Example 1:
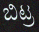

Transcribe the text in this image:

ಬಿಟ್ರ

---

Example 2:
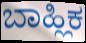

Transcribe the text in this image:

ಬಾಹ್ಲಿಕ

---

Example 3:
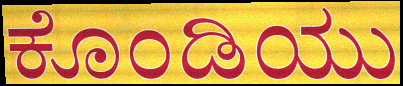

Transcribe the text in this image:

ಕೊಂಡಿಯು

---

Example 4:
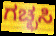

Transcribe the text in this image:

ಗಚ್ಛಸಿ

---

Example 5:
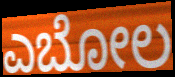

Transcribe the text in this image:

ಎಬೋಲ